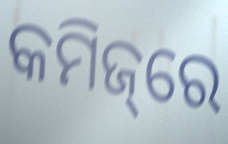
କମିଜ୍‌ରେ